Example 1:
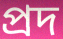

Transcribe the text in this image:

প্রদ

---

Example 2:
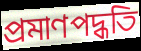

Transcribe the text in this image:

প্রমাণপদ্ধতি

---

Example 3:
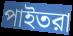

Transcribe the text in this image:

পাইতরা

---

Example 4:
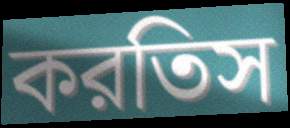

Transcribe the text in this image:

করতিস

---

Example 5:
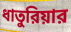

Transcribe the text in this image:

ধাতুরিয়ার